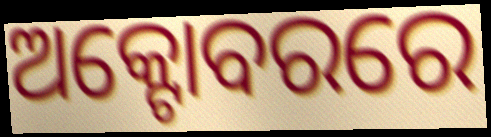
ଅକ୍ଟୋବରରେ